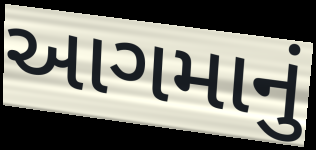
આગમાનું